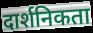
दार्शनिकता